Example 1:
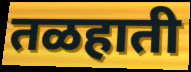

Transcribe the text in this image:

तळहाती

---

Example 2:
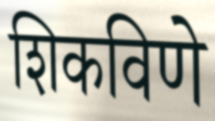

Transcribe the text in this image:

शिकविणे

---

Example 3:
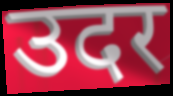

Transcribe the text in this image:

उदर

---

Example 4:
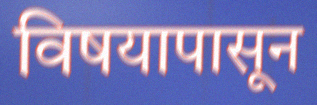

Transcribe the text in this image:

विषयापासून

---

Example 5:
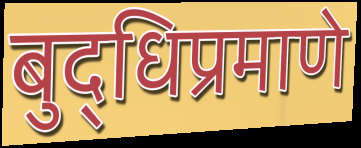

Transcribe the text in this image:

बुद्धिप्रमाणे